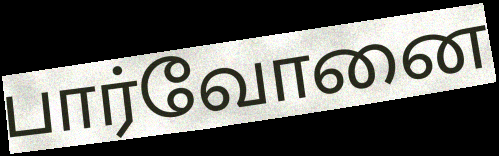
பார்வோனை